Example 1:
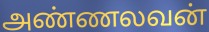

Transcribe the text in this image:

அண்ணலவன்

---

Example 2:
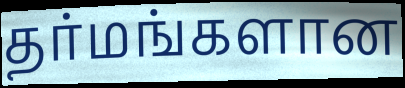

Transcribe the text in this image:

தர்மங்களான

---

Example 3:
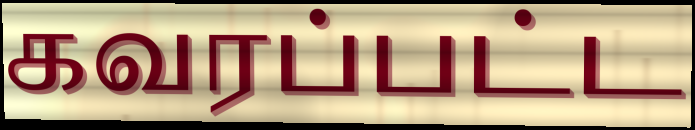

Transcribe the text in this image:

கவரப்பட்ட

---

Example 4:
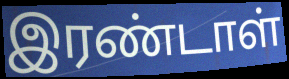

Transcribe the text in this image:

இரண்டாள்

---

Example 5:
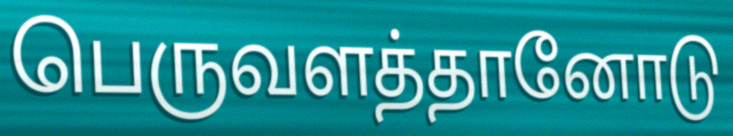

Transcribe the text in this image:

பெருவளத்தானோடு